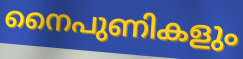
നൈപുണികളും